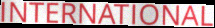
INTERNATIONAL